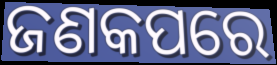
ଜଣକପରେ